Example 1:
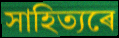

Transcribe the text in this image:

সাহিত্যৰে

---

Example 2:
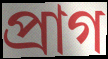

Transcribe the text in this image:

প্ৰাগ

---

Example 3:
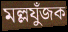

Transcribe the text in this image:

মল্লযুঁজক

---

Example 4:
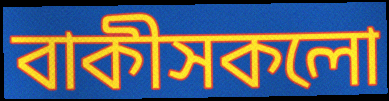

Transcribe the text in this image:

বাকীসকলো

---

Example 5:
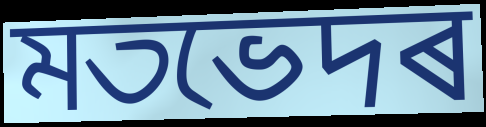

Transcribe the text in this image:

মতভেদৰ